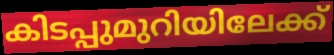
കിടപ്പുമുറിയിലേക്ക്